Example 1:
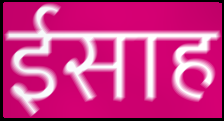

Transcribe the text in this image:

ईसाह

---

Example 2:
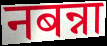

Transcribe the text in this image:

नबन्ना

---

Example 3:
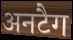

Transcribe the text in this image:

अनटैग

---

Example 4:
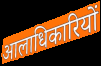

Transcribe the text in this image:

आलाधिकारियों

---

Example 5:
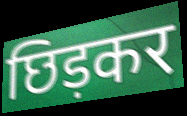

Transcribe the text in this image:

छिड़कर